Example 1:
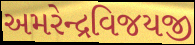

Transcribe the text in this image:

અમરેન્દ્રવિજયજી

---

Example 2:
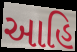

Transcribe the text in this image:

આહિ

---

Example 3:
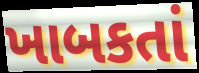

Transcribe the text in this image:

ખાબકતાં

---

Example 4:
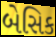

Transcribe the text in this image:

બેસિક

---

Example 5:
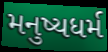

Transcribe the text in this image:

મનુષ્યધર્મ